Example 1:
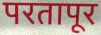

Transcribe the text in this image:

परतापूर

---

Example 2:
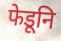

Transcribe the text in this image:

फेडूनि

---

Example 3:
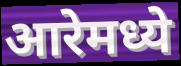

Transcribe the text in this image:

आरेमध्ये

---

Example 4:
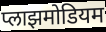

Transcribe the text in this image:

प्लाझमोडियम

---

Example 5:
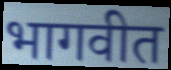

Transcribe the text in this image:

भागवीत